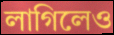
লাগিলেও